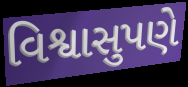
વિશ્વાસુપણે